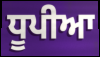
ਧੂਪੀਆ